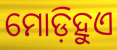
ମୋଡ଼ିହୁଏ